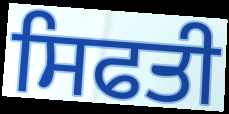
ਸਿਫਤੀ